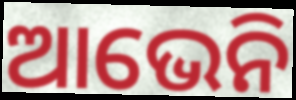
ଆଭେନି